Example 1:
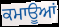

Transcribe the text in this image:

ਕਮਾਊਆਂ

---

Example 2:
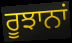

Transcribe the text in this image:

ਰੂਝਾਨਾਂ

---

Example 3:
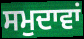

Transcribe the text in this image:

ਸਮੁਦਾਵਾਂ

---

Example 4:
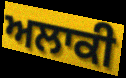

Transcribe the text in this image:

ਅਲਾਕੀ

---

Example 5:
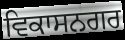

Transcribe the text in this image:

ਵਿਕਾਸਨਗਰ